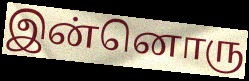
இன்னொரு